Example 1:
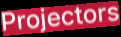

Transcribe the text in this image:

Projectors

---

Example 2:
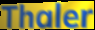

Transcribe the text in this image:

Thaler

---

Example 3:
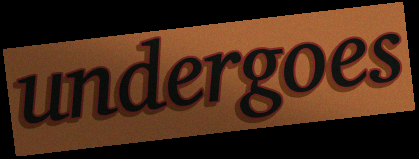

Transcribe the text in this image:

undergoes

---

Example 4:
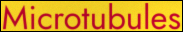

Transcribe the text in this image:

Microtubules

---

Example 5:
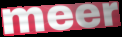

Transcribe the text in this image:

meer